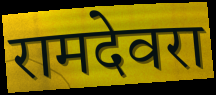
रामदेवरा